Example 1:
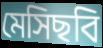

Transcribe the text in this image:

মেসিছবি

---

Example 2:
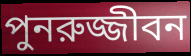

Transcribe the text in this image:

পুনরুজ্জীবন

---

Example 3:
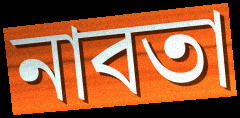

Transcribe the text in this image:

নাবতা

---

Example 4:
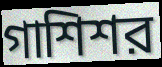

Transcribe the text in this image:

গাশিশর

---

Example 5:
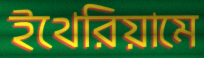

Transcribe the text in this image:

ইথেরিয়ামে